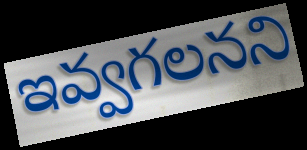
ఇవ్వగలనని